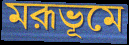
মরূভূমে